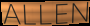
ALLEN